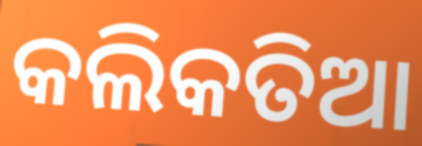
କଲିକତିଆ